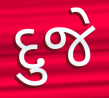
દુજે